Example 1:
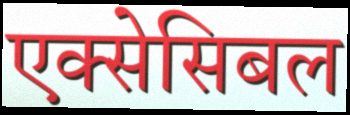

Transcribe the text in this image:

एक्सेसिबल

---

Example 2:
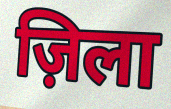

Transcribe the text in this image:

ज़िला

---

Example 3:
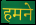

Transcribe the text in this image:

हमने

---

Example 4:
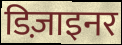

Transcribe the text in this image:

डिज़ाइनर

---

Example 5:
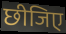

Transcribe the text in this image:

छीजिए